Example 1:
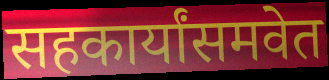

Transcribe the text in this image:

सहकार्यांसमवेत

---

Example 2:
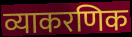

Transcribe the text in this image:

व्याकरणिक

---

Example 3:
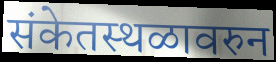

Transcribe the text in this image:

संकेतस्थळावरुन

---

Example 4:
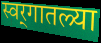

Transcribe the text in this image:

स्वर्गातल्या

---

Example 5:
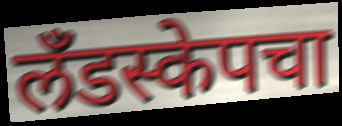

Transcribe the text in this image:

लँडस्केपचा